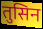
तुसिन